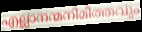
എല്ലാനന്മനിമിത്തവും